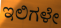
ಇಲಿಗಳೇ